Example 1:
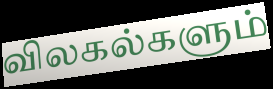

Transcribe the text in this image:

விலகல்களும்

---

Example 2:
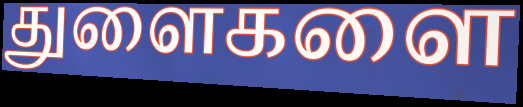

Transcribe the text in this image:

துளைகளை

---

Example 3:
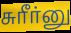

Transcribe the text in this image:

சுரீர்னு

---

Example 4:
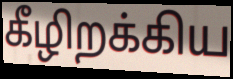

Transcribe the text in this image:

கீழிறக்கிய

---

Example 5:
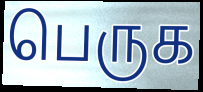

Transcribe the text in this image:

பெருக